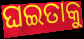
ଘଇତାକୁ